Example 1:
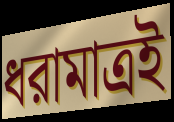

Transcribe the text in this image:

ধরামাত্রই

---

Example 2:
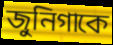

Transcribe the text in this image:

জুনিগাকে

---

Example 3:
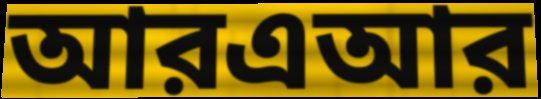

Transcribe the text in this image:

আরএআর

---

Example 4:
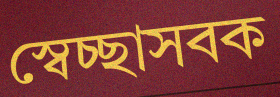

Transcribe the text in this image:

স্বেচ্ছাসবক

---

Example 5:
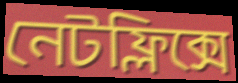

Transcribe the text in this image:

নেটফ্লিক্সে